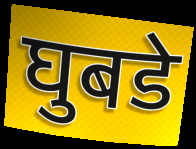
घुबडे